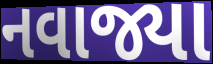
નવાજ્યા